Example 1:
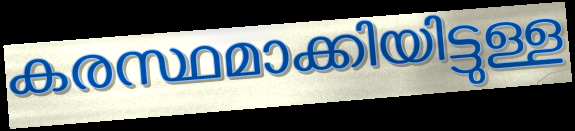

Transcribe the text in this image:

കരസ്ഥമാക്കിയിട്ടുള്ള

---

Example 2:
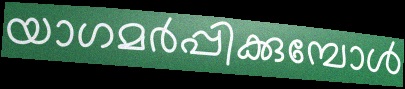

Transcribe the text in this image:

യാഗമർപ്പിക്കുമ്പോൾ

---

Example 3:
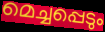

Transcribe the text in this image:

മെച്ചപ്പെടും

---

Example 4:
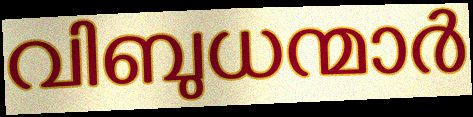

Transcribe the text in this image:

വിബുധന്മാർ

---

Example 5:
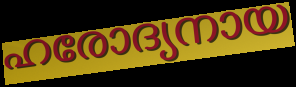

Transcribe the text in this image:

ഹരോദ്യനായ